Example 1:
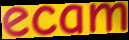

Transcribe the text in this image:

ecam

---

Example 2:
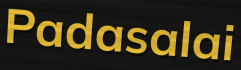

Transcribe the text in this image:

Padasalai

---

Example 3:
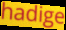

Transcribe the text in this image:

hadige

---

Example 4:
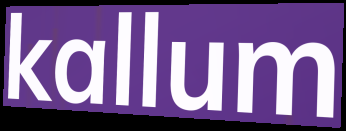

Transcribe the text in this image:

kallum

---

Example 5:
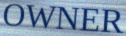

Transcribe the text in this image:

OWNER